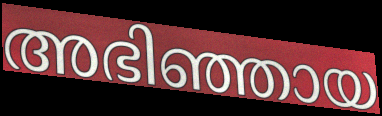
അഭിഞ്ഞായ